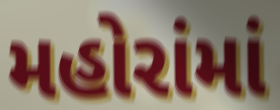
મહોરાંમાં